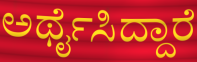
ಅರ್ಥೈಸಿದ್ದಾರೆ